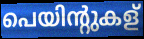
പെയിന്റുകള്